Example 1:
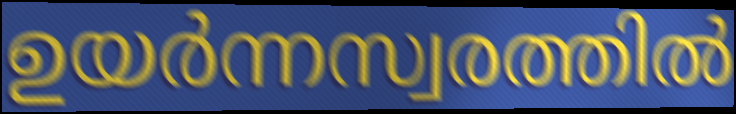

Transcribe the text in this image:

ഉയർന്നസ്വരത്തിൽ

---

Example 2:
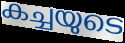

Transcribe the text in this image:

കച്ചയുടെ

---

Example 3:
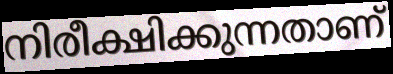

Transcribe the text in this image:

നിരീക്ഷിക്കുന്നതാണ്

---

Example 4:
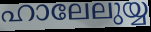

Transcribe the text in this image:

ഹാലേലുയ്യ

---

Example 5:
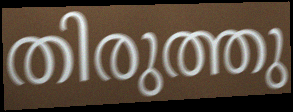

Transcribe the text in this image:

തിരുത്തു